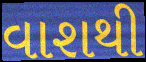
વાશથી